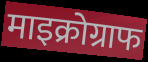
माइक्रोग्राफ